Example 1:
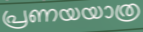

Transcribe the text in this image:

പ്രണയയാത്ര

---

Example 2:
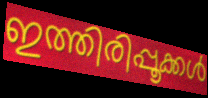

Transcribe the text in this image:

ഇത്തിരിപ്പൂക്കൾ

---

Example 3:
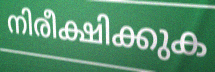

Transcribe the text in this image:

നിരീക്ഷിക്കുക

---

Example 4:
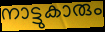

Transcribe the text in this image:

നാട്ടുകാരും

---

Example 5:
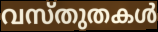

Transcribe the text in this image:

വസ്തുതകൾ